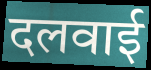
दलवाई